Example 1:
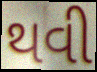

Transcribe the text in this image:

થવી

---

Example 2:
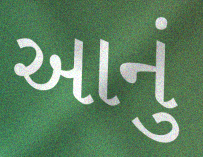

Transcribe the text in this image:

આનું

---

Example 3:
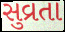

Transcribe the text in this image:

સુવ્રતા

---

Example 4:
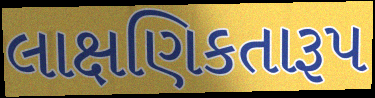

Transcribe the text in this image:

લાક્ષણિકતારૂપ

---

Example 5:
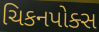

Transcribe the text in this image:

ચિકનપોક્સ